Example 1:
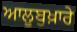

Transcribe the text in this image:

ਆਲੂਬੁਖ਼ਾਰੇ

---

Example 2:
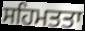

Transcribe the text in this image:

ਸਹਿਮਤਤਾ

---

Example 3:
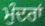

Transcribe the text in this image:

ਮੁੰਦਰਾਂ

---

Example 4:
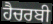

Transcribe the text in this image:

ਹੈਚਰਬੀ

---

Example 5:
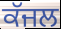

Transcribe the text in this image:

ਕੱਜਲ